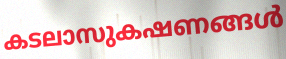
കടലാസുകഷണങ്ങൾ